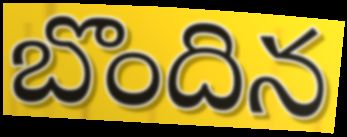
బొందిన